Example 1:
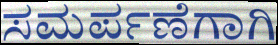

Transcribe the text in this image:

ಸಮರ್ಪಣೆಗಾಗಿ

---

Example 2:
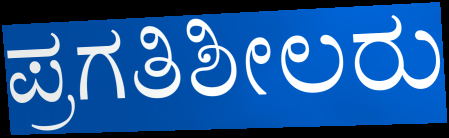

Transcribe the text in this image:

ಪ್ರಗತಿಶೀಲರು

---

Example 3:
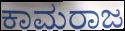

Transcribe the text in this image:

ಕಾಮರಾಜ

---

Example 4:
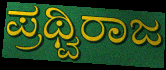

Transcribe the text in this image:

ಪ್ರಥ್ವಿರಾಜ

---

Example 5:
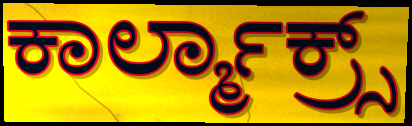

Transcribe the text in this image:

ಕಾರ್ಲ್ಮಾಕ್ರ್ಸ್